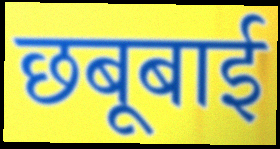
छबूबाई